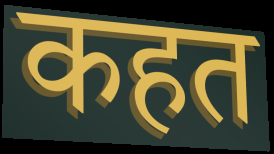
कहत